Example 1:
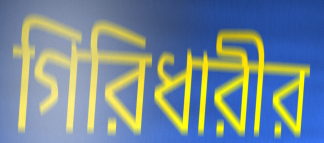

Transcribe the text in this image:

গিরিধারীর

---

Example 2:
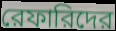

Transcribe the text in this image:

রেফারিদের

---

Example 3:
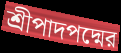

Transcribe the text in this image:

শ্রীপাদপদ্মের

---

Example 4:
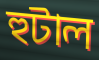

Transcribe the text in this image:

হুটাল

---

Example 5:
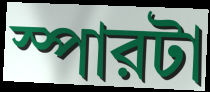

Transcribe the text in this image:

স্পারটা